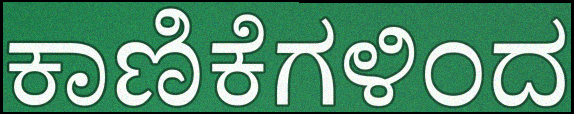
ಕಾಣಿಕೆಗಳಿಂದ